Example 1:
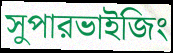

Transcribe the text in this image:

সুপারভাইজিং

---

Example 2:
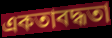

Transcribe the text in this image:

একতাবদ্ধতা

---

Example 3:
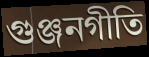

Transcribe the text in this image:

গুঞ্জনগীতি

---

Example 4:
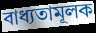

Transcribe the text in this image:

বাধ্যতামূলক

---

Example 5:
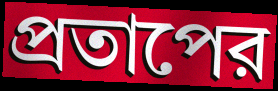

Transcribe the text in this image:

প্রতাপের